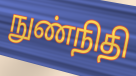
நுண்நிதி